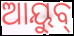
ଆୟୁବ୍